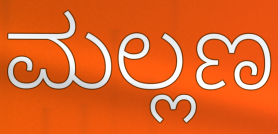
ಮಲ್ಲಣ